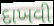
દાખવી